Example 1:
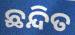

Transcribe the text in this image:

ଛନ୍ଦିତ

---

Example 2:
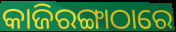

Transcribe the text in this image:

କାଜିରଙ୍ଗାଠାରେ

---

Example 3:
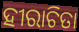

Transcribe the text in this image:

ହୀରାଚିତା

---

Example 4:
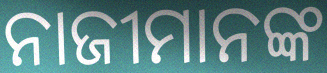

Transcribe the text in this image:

ନାଜୀମାନଙ୍କ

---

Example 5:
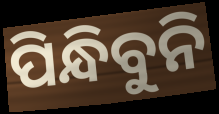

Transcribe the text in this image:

ପିନ୍ଧିବୁନି